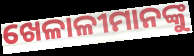
ଖେଳାଳୀମାନଙ୍କୁ